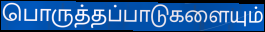
பொருத்தப்பாடுகளையும்